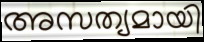
അസത്യമായി